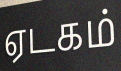
ஏடகம்